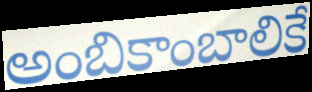
అంబికాంబాలికే